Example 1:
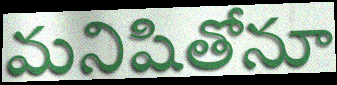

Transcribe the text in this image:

మనిషితోనూ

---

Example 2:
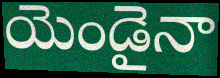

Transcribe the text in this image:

యెండైనా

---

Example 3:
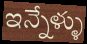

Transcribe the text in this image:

ఇన్నేళ్ళు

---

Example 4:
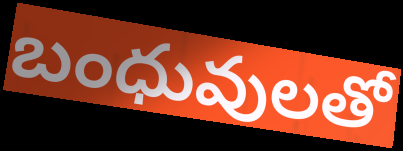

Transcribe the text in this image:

బంధువులతో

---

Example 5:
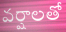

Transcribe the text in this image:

వర్షాలతో